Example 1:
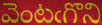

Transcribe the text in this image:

వెంటఁగొని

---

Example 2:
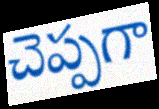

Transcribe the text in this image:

చెప్పగా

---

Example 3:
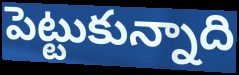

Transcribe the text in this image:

పెట్టుకున్నాది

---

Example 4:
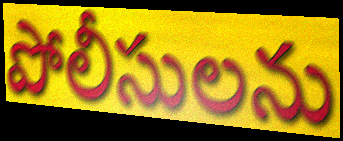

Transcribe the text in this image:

పోలీసులను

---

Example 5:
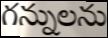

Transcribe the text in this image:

గన్నులను